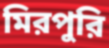
মিরপুরি